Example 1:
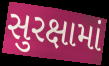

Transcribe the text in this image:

સુરક્ષામાં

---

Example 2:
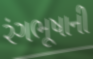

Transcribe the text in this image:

રંગભૂષાની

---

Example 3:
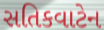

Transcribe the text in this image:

સતિકવાટેન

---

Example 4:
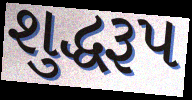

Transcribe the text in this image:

શુદ્ધરૂપ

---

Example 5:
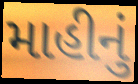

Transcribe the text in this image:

માહીનું